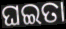
ଘଇତା